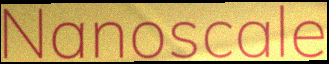
Nanoscale